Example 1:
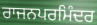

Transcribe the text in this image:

ਰਾਜਨਪਰਮਿੰਦਰ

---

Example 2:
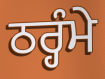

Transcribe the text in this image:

ਠਰ੍ਹੰਮੇ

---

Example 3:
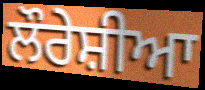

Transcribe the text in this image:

ਲੌਰੇਸ਼ੀਆ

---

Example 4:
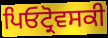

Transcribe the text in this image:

ਪਿਓਟ੍ਰੋਵਸਕੀ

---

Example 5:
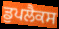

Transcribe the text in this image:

ਡੁਪਲੈਕਸ